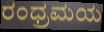
ರಂಧ್ರಮಯ